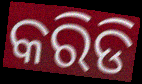
କରିଡି